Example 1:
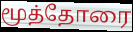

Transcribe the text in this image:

மூத்தோரை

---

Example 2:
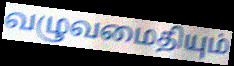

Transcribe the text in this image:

வழுவமைதியும்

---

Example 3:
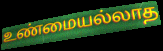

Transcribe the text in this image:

உண்மையல்லாத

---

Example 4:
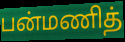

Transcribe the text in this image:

பன்மணித்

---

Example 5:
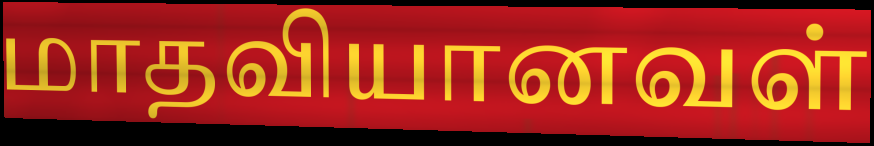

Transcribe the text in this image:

மாதவியானவள்